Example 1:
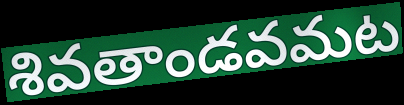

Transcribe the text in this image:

శివతాండవమట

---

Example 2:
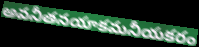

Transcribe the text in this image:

అవనీతనయాకమనీయకరం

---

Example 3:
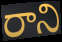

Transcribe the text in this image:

రాని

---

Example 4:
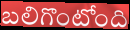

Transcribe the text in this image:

బలిగొంటోంది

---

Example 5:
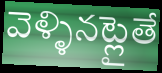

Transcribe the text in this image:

వెళ్ళినట్లైతే